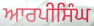
ਆਰਪੀਸਿੰਘ